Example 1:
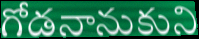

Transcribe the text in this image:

గోడనానుకుని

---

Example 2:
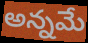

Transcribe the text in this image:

అన్నమే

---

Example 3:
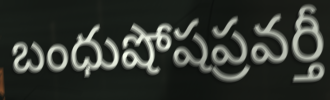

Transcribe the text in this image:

బంధుషోషప్రవర్తీ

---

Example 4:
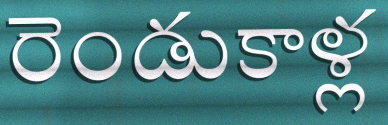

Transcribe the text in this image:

రెండుకాళ్ల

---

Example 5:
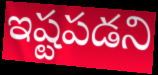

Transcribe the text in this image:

ఇష్టపడని